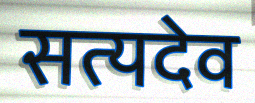
सत्‍यदेव